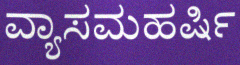
ವ್ಯಾಸಮಹರ್ಷಿ